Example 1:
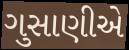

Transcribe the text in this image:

ગુસાણીએ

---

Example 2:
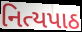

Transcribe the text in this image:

નિત્યપાઠ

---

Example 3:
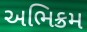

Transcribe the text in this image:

અભિક્રમ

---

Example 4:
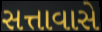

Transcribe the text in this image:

સત્તાવાસે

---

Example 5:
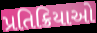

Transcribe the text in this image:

પ્રતિક્રિયાઓ